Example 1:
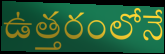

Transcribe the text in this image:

ఉత్తరంలోనే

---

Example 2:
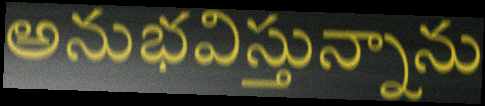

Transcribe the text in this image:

అనుభవిస్తున్నాను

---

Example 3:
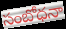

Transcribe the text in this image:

సంబోధనా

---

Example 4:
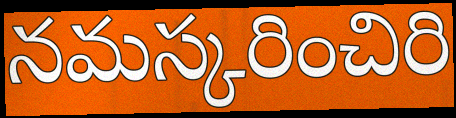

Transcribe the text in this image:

నమస్కరించిరి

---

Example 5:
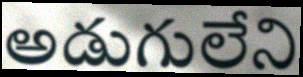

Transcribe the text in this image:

అడుగులేని